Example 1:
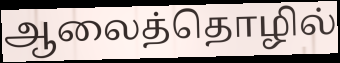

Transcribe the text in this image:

ஆலைத்தொழில்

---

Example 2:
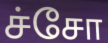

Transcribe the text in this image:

ச்சோ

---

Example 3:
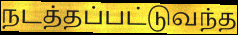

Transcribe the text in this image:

நடத்தப்பட்டுவந்த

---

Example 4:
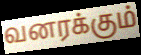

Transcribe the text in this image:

வனரக்கும்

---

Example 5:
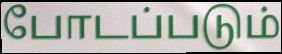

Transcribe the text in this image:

போடப்படும்